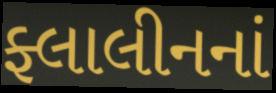
ફ્લાલીનનાં